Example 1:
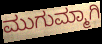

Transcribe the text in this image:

ಮುಗುಮ್ಮಾಗಿ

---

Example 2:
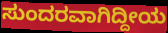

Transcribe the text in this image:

ಸುಂದರವಾಗಿದ್ದೀಯ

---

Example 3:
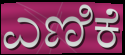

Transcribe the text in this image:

ಎಣಿಕೆ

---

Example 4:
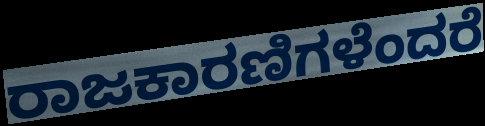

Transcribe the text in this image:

ರಾಜಕಾರಣಿಗಳೆಂದರೆ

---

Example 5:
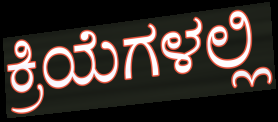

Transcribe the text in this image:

ಕ್ರಿಯೆಗಳಲ್ಲಿ